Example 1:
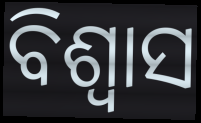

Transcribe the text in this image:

ବିଶ୍ଵାସ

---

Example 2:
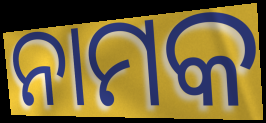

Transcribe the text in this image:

ନାମକ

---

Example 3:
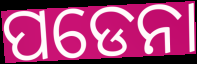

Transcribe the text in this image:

ପଡେନା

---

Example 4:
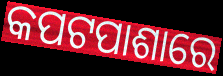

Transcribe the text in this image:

କପଟପାଶାରେ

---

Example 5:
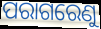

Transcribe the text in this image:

ପରାଗରେଣୁ